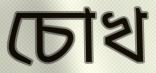
চোখ